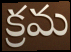
క్రమ